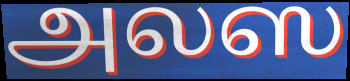
அலஸ